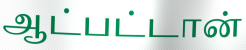
ஆட்பட்டான்